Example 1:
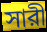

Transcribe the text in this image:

সারী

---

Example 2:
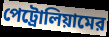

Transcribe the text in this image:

পেট্রোলিয়ামের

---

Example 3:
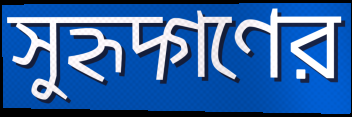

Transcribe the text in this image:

সুহৃদ্গণের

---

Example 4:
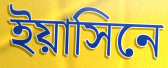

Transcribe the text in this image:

ইয়াসিনে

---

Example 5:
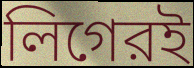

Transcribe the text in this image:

লিগেরই